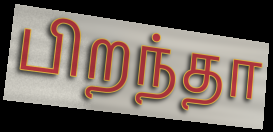
பிறந்தா